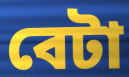
বেটা